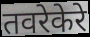
तवरेकेरे